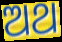
ଅଥ